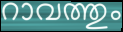
റാവത്തും